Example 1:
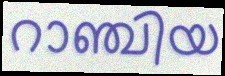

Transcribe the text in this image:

റാഞ്ചിയ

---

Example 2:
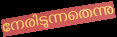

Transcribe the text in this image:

നേരിടുന്നതെന്നു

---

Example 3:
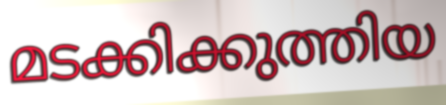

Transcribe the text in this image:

മടക്കിക്കുത്തിയ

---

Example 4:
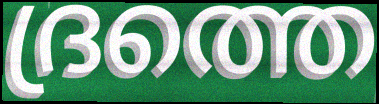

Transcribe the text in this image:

ദ്രത്തെ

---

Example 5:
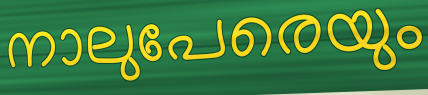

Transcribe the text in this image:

നാലുപേരെയും